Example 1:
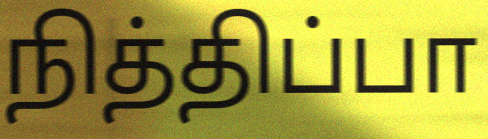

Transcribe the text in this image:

நித்திப்பா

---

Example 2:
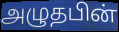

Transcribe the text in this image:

அழுதபின்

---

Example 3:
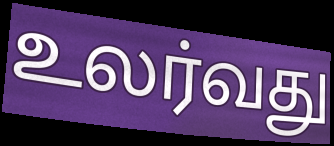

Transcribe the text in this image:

உலர்வது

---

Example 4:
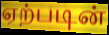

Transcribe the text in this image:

ஏற்படின்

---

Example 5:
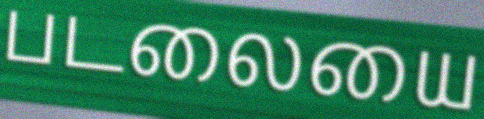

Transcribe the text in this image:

படலையை